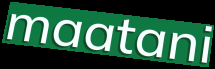
maatani